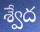
శ్వేద